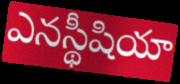
ఎనస్థీషియా